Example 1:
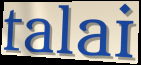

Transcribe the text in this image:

talai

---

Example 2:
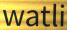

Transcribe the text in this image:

watli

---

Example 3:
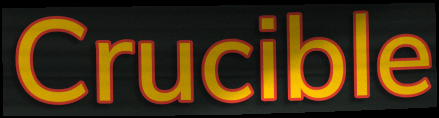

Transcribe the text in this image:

Crucible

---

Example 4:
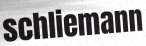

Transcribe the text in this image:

schliemann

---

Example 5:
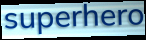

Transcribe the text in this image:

superhero